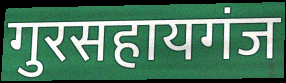
गुरसहायगंज